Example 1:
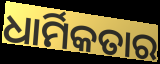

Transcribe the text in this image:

ଧାର୍ମିକତାର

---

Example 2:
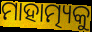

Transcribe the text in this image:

ମାହାତ୍ମ୍ୟକୁ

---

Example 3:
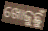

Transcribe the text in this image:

ଖୋଜୁଛୁଁ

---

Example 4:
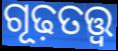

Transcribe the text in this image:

ଗୂଢ଼ତତ୍ତ୍ୱ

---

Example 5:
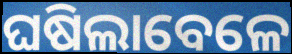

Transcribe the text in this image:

ଘଷିଲାବେଳେ